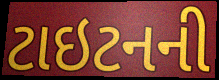
ટાઇટનની